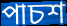
পাচশ